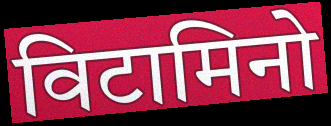
विटामिनो